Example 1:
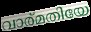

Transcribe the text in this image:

വാര്മതിയേ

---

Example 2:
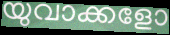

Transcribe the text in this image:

യുവാക്കളോ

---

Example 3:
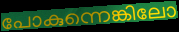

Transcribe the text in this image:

പോകുന്നെങ്കിലോ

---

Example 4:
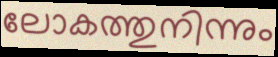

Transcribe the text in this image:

ലോകത്തുനിന്നും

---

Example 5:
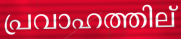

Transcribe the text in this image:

പ്രവാഹത്തില്